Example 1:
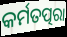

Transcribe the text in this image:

କର୍ମତତ୍ପରା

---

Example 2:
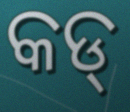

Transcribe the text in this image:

କଡ୍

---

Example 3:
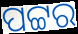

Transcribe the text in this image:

ପଟ୍ଟର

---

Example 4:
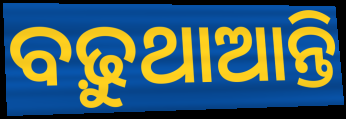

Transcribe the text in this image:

ବଢ଼ୁଥାଆନ୍ତି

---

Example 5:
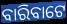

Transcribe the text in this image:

ବାରିବାଟେ